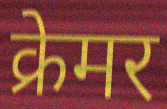
क्रेमर